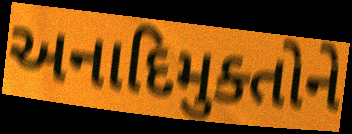
અનાદિમુક્તોને